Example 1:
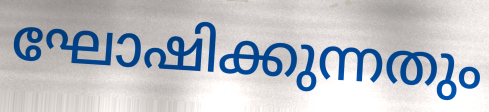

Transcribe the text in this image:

ഘോഷിക്കുന്നതും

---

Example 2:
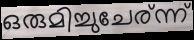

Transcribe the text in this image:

ഒരുമിച്ചുചേര്ന്ന്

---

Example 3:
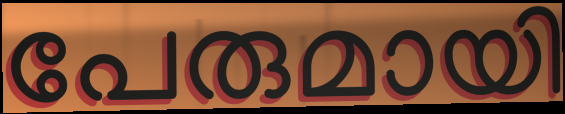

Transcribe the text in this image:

പേരുമായി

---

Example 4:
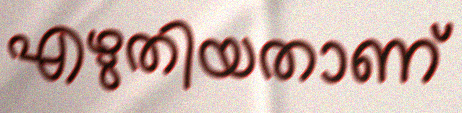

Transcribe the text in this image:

എഴുതിയതാണ്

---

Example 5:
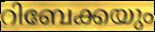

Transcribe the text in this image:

റിബേക്കയും